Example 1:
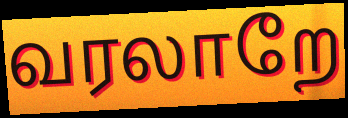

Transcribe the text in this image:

வரலாறே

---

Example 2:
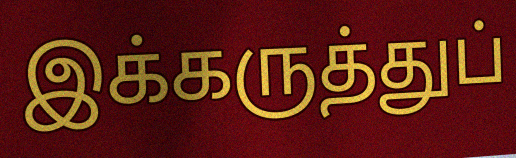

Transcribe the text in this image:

இக்கருத்துப்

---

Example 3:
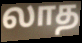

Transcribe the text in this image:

லாத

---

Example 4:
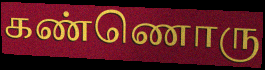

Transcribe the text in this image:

கண்ணொரு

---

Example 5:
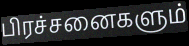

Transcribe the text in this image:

பிரச்சனைகளும்